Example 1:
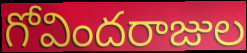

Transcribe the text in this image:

గోవిందరాజుల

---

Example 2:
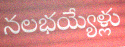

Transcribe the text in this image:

నలభయ్యేళ్లు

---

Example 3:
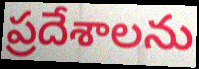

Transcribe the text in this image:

ప్రదేశాలను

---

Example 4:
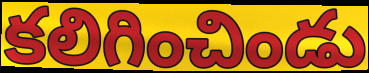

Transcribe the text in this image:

కలిగించిండు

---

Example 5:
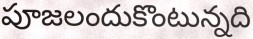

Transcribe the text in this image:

పూజలందుకొంటున్నది